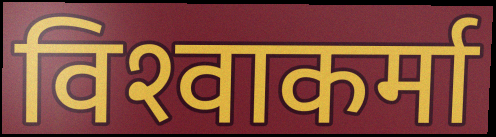
विश्वाकर्मा